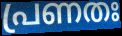
പ്രണതഃ